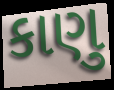
કાણુ